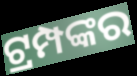
ଟ୍ରମ୍ପଙ୍କର